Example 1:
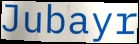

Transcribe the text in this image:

Jubayr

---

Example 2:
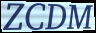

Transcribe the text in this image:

ZCDM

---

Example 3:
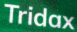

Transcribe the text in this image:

Tridax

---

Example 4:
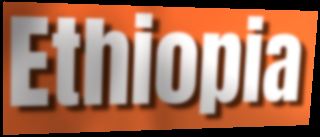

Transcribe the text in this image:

Ethiopia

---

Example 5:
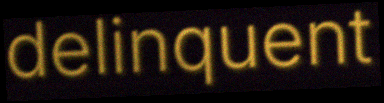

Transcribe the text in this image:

delinquent